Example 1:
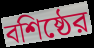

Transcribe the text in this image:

বশিষ্ঠের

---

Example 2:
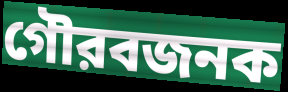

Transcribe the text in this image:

গৌরবজনক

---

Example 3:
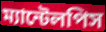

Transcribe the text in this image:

ম্যান্টেলপিস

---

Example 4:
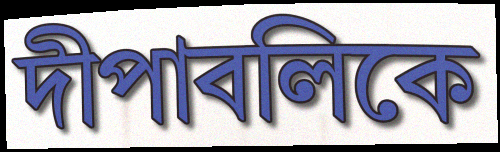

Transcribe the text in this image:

দীপাবলিকে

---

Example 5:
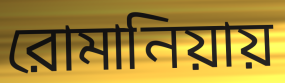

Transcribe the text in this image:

রোমানিয়ায়